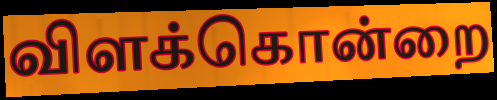
விளக்கொன்றை